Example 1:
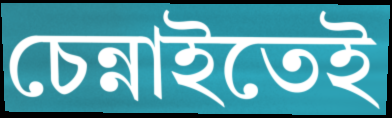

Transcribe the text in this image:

চেন্নাইতেই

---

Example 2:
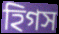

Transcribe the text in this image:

হিগস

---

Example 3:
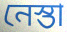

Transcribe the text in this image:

নেস্তা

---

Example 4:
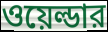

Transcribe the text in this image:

ওয়েল্ডার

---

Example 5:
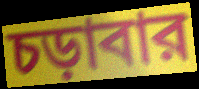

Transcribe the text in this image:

চড়াবার